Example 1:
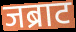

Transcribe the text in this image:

जब्राट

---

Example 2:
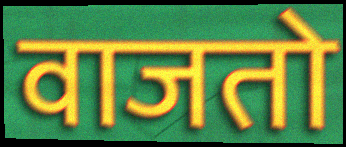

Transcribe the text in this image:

वाजतो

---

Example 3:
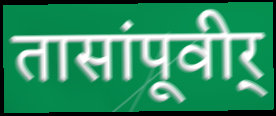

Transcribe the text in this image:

तासांपूवीर्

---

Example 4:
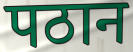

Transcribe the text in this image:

पठान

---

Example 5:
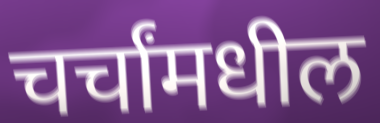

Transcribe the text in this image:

चर्चांमधील